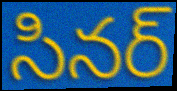
సినర్